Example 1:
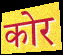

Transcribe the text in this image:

कोर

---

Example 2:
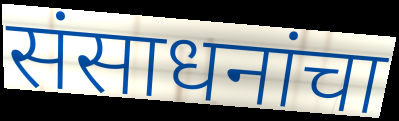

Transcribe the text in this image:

संसाधनांचा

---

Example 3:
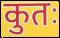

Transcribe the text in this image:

कुतः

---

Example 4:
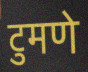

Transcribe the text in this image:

टुमणे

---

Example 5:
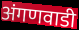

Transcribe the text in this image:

अंगणवाडी